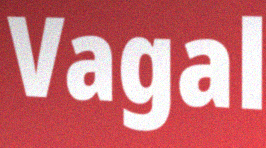
Vagal